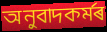
অনুবাদকৰ্মৰ